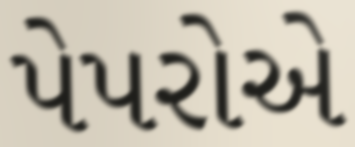
પેપરોએ